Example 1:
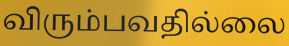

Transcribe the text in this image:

விரும்பவதில்லை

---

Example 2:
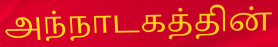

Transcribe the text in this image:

அந்நாடகத்தின்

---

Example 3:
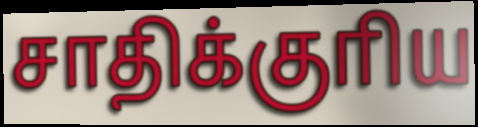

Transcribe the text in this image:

சாதிக்குரிய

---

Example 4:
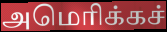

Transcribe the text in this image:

அமெரிக்கச்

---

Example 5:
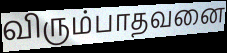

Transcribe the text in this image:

விரும்பாதவனை